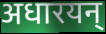
अधारयन्